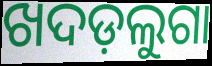
ଖଦଡ଼ଲୁଗା